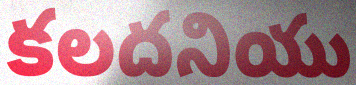
కలదనియు